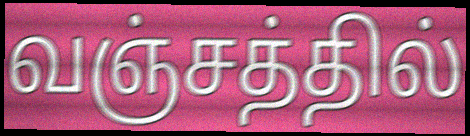
வஞ்சத்தில்